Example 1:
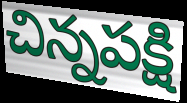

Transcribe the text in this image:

చిన్నపక్షి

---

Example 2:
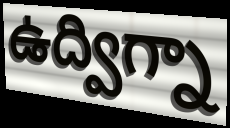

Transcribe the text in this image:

ఉద్విగ్నా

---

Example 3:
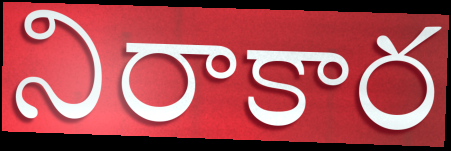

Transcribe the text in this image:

నిరాకార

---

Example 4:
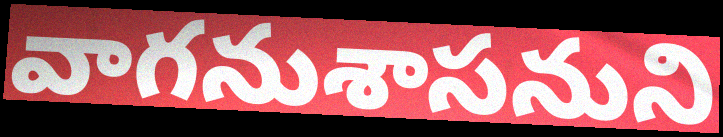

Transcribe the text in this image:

వాగనుశాసనుని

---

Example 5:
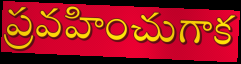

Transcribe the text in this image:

ప్రవహించుగాక